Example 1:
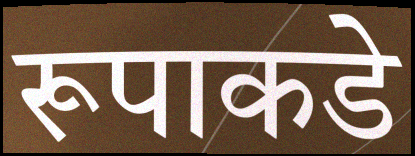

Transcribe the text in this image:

रूपाकडे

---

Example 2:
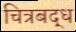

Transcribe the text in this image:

चित्रबद्ध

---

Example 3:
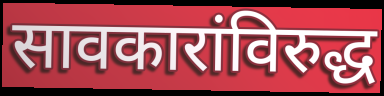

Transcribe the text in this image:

सावकारांविरुद्ध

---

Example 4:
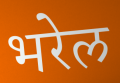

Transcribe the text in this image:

भरेल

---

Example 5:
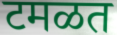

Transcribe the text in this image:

टमळत